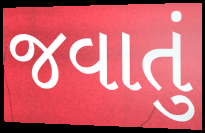
જવાતું